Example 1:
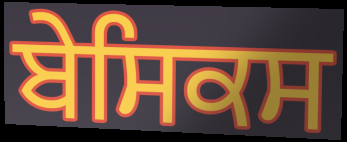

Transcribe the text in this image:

ਬੇਸਿਕਸ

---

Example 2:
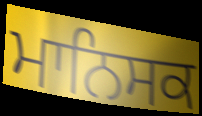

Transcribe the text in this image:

ਮਾਨਿਸਕ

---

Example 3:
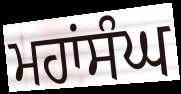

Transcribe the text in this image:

ਮਹਾਂਸੰਘ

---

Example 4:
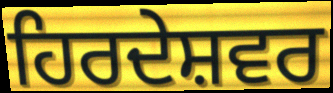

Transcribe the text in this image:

ਹਿਰਦੇਸ਼ਵਰ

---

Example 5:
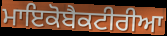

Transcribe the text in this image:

ਮਾਇਕੋਬੈਕਟੀਰੀਆ